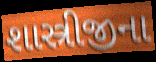
શાસ્ત્રીજીના